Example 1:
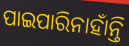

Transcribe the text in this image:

ପାଇପାରିନାହାଁନ୍ତି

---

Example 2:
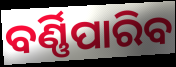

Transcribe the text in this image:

ବର୍ଣ୍ଣିପାରିବ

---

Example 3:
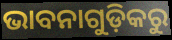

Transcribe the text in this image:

ଭାବନାଗୁଡ଼ିକରୁ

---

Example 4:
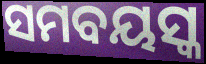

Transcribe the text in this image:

ସମବୟସ୍କ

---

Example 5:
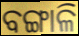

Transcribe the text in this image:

ବଙ୍ଗାଳି